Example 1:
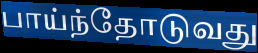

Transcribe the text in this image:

பாய்ந்தோடுவது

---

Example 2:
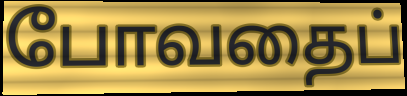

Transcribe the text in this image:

போவதைப்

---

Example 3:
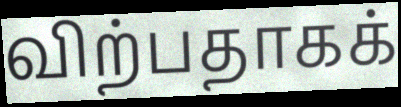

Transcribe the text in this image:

விற்பதாகக்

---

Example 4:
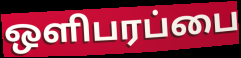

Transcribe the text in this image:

ஒளிபரப்பை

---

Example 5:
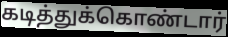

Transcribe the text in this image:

கடித்துக்கொண்டார்